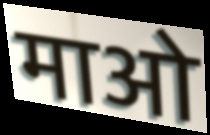
माओ